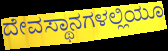
ದೇವಸ್ಥಾನಗಳಲ್ಲಿಯೂ